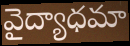
వైద్యాధమా